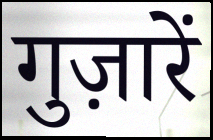
गुज़ारें